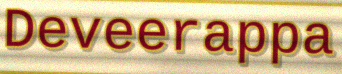
Deveerappa